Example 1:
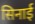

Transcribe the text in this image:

सिनाई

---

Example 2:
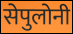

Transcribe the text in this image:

सेपुलोनी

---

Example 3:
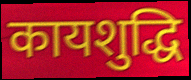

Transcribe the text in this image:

कायशुद्धि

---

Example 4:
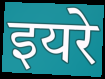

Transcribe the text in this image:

इयरे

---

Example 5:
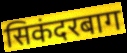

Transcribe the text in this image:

सिकंदरबाग